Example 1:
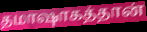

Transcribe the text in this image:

தமாஷாகத்தான்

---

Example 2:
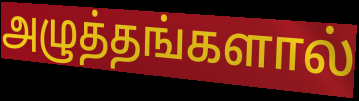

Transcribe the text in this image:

அழுத்தங்களால்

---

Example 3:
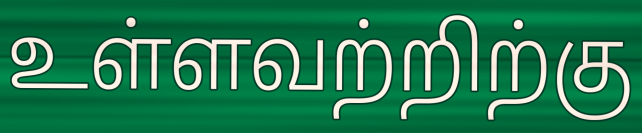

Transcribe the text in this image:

உள்ளவற்றிற்கு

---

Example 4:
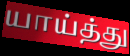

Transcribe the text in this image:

யாய்த்து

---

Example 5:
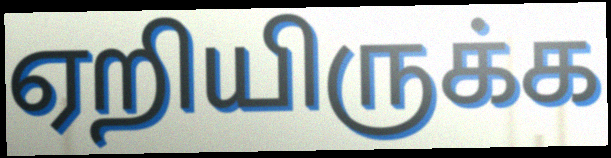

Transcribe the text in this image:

ஏறியிருக்க